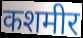
कशमीर